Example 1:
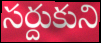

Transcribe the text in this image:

సర్దుకుని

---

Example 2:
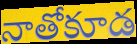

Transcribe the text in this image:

నాతోకూడ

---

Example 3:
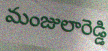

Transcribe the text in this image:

మంజులారెడ్డి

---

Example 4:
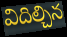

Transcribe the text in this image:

విదిల్చిన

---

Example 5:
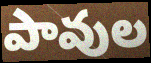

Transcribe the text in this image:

పావుల